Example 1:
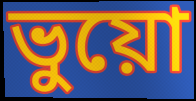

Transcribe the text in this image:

ভুয়ো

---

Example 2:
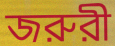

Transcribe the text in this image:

জরুরী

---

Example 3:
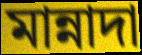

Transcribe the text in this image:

মান্নাদা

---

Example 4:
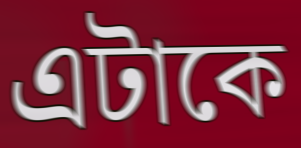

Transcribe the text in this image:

এটাকে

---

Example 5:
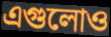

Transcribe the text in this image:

এগুলোও